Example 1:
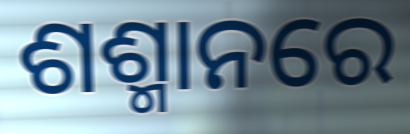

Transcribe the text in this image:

ଶଶ୍ମାନରେ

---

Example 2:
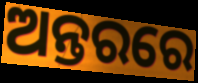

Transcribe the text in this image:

ଅନ୍ତରରେ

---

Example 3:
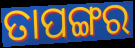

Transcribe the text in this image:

ତାପଙ୍ଗର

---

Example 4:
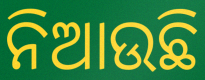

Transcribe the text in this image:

ନିଆଉଛି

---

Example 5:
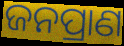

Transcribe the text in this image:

ଜନପ୍ରାଣ